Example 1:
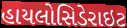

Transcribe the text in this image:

હાયલોસિડેરાઇટ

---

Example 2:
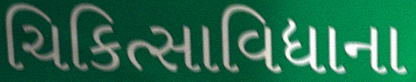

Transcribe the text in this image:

ચિકિત્સાવિદ્યાના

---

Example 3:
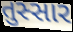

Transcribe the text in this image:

તુસ્સાર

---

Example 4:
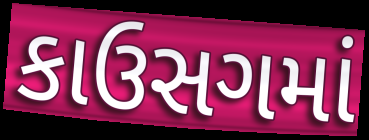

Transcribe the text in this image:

કાઉસગમાં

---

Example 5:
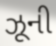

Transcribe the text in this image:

ઝૂની